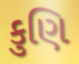
કુણિ